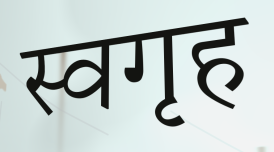
स्वगृह